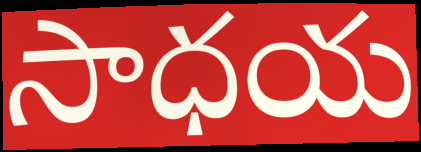
సాధయ